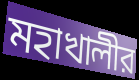
মহাখালীর